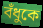
বঁধুকে